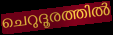
ചെറുദൂരത്തിൽ